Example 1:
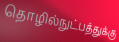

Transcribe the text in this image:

தொழில்நுட்பத்துக்கு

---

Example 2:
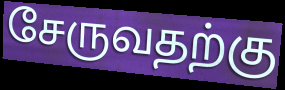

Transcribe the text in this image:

சேருவதற்கு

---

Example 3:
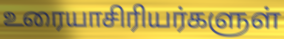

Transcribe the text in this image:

உரையாசிரியர்களுள்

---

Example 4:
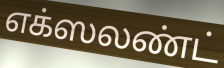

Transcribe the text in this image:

எக்ஸலண்ட்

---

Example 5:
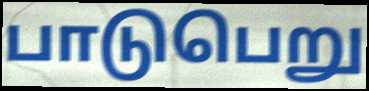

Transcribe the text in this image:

பாடுபெறு